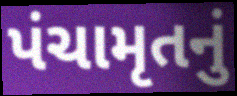
પંચામૃતનું